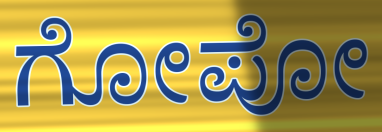
ಗೋಪೋ